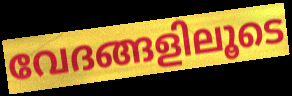
വേദങ്ങളിലൂടെ